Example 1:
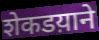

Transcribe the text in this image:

शेकडय़ाने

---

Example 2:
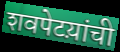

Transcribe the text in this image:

शवपेटय़ांची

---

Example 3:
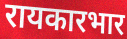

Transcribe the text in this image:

रायकारभार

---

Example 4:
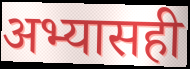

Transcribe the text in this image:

अभ्यासही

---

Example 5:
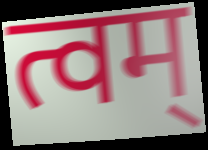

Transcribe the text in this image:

त्वम्